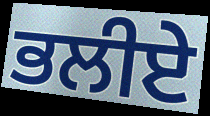
ਭਲੀਏ